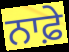
ਨਾਫ਼ੇ